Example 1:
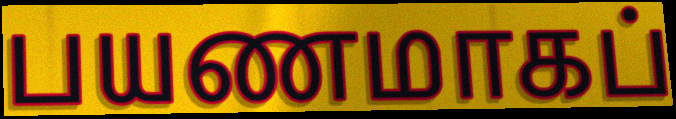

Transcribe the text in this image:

பயணமாகப்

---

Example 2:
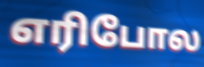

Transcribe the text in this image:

எரிபோல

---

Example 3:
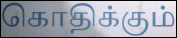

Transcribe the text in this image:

கொதிக்கும்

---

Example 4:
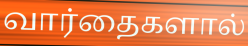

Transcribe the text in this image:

வார்தைகளால்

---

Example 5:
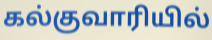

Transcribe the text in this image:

கல்குவாரியில்